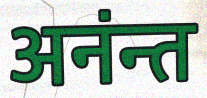
अनंन्त